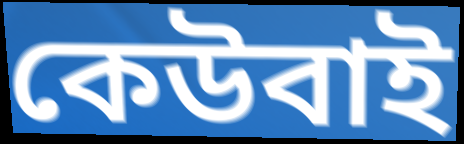
কেউবাই